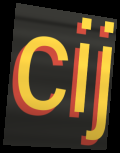
cij